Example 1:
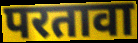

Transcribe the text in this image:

परतावा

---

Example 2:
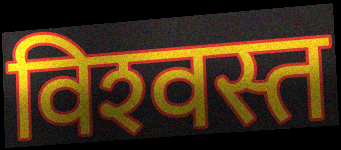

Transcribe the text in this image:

विश्‍वस्त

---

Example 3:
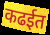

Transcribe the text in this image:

कढईत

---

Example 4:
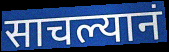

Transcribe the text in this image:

साचल्यानं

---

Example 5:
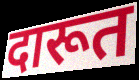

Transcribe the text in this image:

दारूत